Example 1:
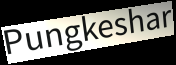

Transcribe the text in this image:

Pungkeshar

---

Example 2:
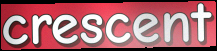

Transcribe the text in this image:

crescent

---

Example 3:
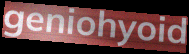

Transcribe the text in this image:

geniohyoid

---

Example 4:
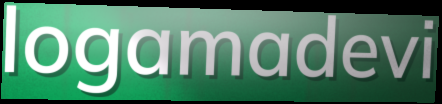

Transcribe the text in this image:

logamadevi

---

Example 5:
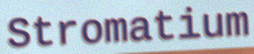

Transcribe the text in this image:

Stromatium